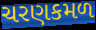
ચરણકમળ